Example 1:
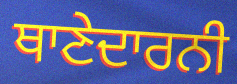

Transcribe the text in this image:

ਥਾਣੇਦਾਰਨੀ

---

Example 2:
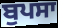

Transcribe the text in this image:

ਬੁਪਸਾ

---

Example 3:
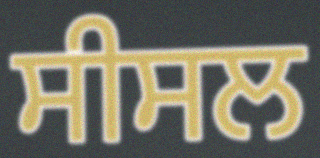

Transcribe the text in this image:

ਸੀਸਲ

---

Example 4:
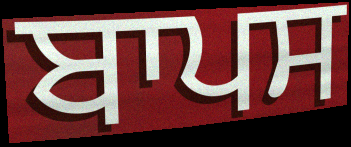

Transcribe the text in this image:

ਬਾਪਸ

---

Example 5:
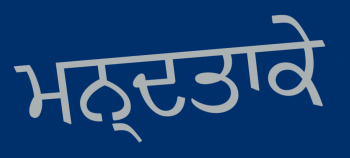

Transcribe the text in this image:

ਮਨ੍ਦਤਾਕੇ